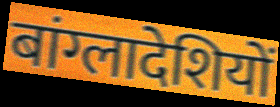
बांग्लादेशियों